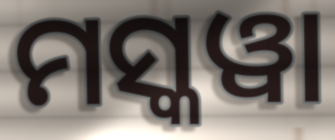
ମସ୍କୱା